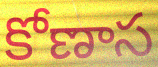
కోణాస